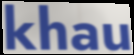
khau